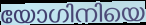
യോഗിനിയെ